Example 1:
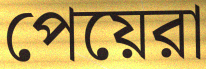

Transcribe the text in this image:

পেয়েরা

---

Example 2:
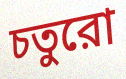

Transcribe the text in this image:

চতুরো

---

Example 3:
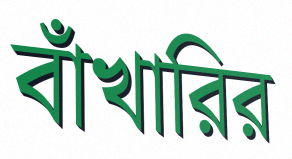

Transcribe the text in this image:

বাঁখারির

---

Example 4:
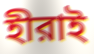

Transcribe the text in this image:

হীরাই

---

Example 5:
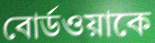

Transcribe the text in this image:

বোর্ডওয়াকে